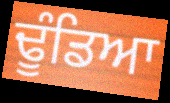
ਢੂੰਡਿਆ